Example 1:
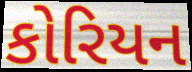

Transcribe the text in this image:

કોરિયન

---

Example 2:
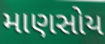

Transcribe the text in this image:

માણસોય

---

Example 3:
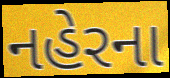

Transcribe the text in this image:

નહેરના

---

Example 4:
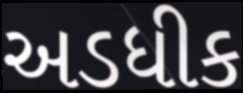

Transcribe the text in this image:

અડધીક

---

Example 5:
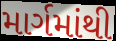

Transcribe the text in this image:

માર્ગમાંથી